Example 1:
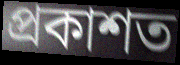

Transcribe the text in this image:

প্ৰকাশত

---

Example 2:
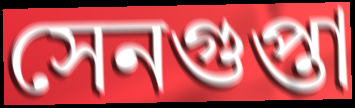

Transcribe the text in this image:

সেনগুপ্তা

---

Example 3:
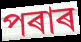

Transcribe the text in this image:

পৰাৰ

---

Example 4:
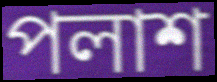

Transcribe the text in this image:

পলাশ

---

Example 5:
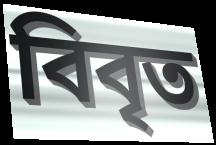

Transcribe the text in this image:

বিবৃত